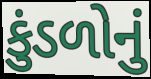
કુંડળોનું